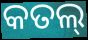
କତଲ୍